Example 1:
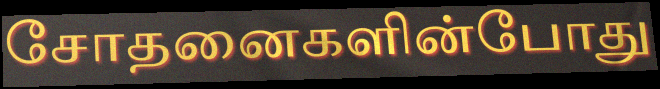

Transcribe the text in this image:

சோதனைகளின்போது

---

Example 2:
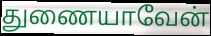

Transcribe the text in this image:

துணையாவேன்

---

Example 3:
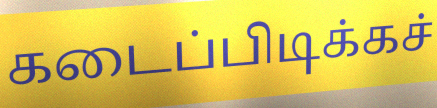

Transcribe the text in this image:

கடைப்பிடிக்கச்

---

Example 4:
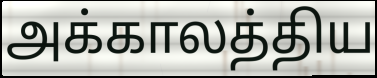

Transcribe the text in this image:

அக்காலத்திய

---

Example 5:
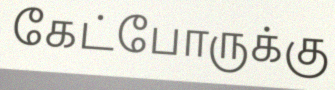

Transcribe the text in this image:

கேட்போருக்கு